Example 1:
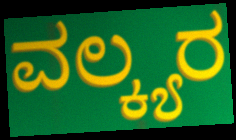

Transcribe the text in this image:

ವಲ್ಕ್ಯರ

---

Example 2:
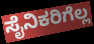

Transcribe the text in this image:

ಸೈನಿಕರಿಗೆಲ್ಲ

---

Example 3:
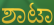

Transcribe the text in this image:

ಶಾಟಾ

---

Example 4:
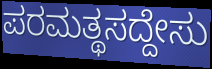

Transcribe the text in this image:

ಪರಮತ್ಥಸದ್ದೇಸು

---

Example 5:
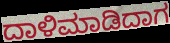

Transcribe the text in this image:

ದಾಳಿಮಾಡಿದಾಗ